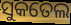
ସୁକତେଲ